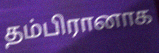
தம்பிரானாக